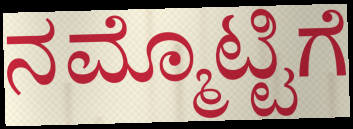
ನಮ್ಮೊಟ್ಟಿಗೆ